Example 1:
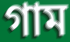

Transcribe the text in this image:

গাম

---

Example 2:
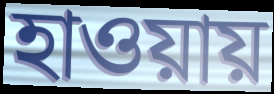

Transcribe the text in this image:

হাওয়ায়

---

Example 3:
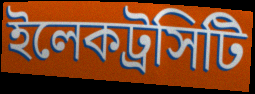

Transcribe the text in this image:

ইলেকট্রসিটি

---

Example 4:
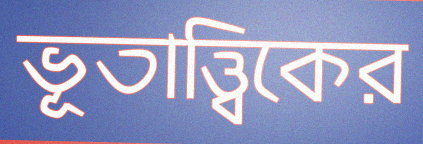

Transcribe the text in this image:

ভূতাত্ত্বিকের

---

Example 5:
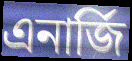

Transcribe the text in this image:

এনার্জি